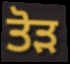
ਤੋੜ